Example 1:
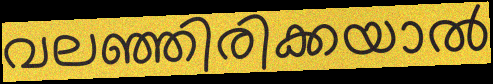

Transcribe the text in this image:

വലഞ്ഞിരിക്കയാൽ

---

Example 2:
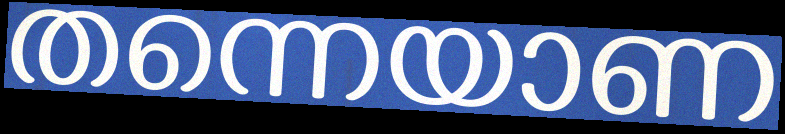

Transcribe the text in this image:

തന്നെയാണ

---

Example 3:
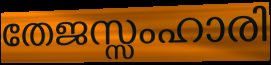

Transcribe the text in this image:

തേജസ്സംഹാരി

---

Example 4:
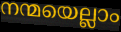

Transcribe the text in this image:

നന്മയെല്ലാം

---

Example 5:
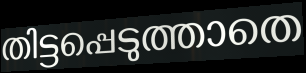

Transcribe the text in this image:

തിട്ടപ്പെടുത്താതെ